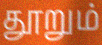
தூறும்